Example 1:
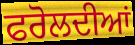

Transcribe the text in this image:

ਫਰੋਲਦੀਆਂ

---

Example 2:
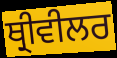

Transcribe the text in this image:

ਥ੍ਰੀਵੀਲਰ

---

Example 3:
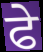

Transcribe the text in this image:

ਫੇ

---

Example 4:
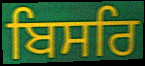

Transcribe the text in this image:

ਬਿਸਰਿ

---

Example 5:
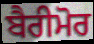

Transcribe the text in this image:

ਬੈਰੀਮੋਰ